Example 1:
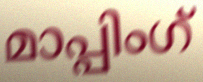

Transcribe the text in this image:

മാപ്പിംഗ്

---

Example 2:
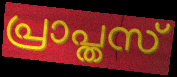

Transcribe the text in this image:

പ്രാപ്തസ്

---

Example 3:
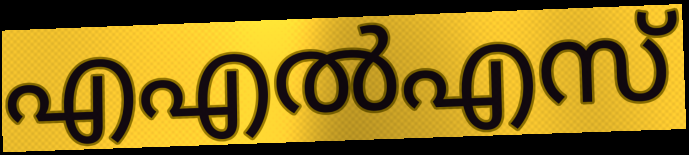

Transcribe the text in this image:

എഎൽഎസ്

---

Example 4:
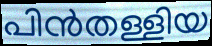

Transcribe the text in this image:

പിൻതള്ളിയ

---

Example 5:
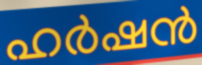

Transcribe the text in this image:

ഹർഷൻ